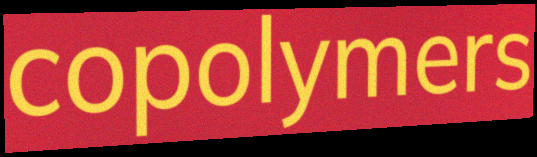
copolymers